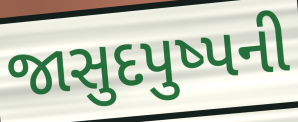
જાસુદપુષ્પની